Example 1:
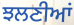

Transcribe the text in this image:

ਝਲਣੀਆਂ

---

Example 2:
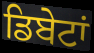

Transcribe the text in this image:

ਡਿਬੇਟਾਂ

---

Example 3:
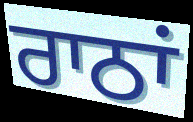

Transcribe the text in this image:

ਰਾਠਾਂ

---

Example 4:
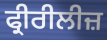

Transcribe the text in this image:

ਫ੍ਰੀਰੀਲੀਜ਼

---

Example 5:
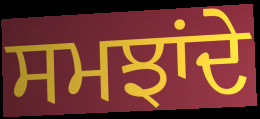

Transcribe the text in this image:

ਸਮਝਾਂਦੇ